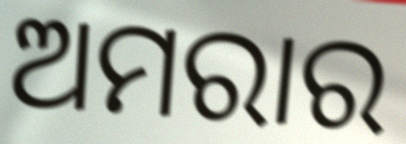
ଅମରାର